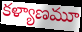
కళ్యాణమూ